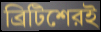
ব্রিটিশেরই